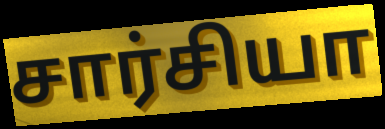
சார்சியா